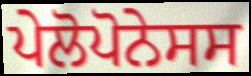
ਪੇਲੋਪੋਨੇਸਸ